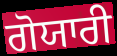
ਗੋਯਾਰੀ